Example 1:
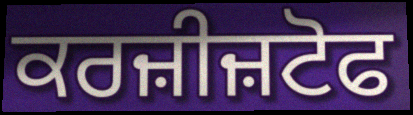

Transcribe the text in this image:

ਕਰਜ਼ੀਜ਼ਟੋਫ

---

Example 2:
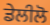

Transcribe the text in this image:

ਡੇਲੀਲੋ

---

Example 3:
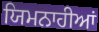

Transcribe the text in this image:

ਯਿਮਨਾਹੀਆਂ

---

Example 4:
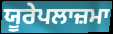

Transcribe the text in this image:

ਯੂਰੇਪਲਾਜ਼ਮਾ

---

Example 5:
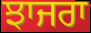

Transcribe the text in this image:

ਝਾਜਰਾ